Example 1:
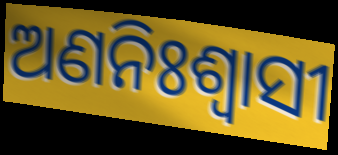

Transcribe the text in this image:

ଅଣନିଃଶ୍ଵାସୀ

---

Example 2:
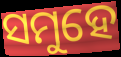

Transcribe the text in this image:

ସମୁହେ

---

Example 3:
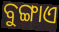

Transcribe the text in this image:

ବୁଙ୍ଗାଏ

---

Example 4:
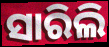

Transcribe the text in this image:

ସାରିଲି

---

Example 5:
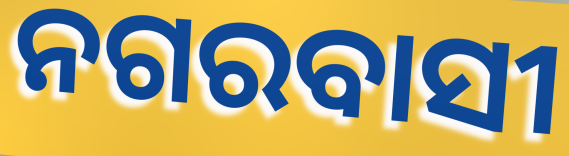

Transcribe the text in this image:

ନଗରବାସୀ